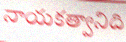
నాయకత్వానిది